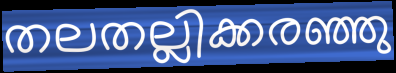
തലതല്ലിക്കരഞ്ഞു